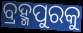
ବ୍ରହ୍ମପୁରକୁ